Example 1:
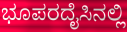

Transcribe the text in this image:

ಭೂಪರದೈಸಿನಲ್ಲಿ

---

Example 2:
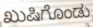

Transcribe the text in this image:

ಖುಷಿಗೊಂಡು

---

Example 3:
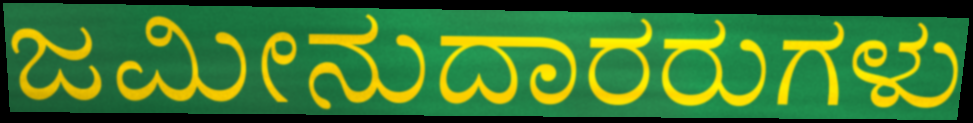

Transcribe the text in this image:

ಜಮೀನುದಾರರುಗಳು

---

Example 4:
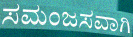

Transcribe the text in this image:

ಸಮಂಜಸವಾಗಿ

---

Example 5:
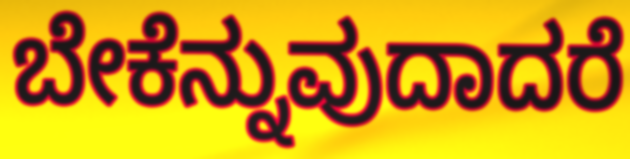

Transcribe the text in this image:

ಬೇಕೆನ್ನುವುದಾದರೆ